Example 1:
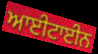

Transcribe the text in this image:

ਆਈਟਾਈਨ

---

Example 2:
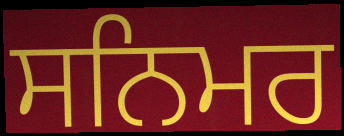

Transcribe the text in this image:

ਸਨਿਮਰ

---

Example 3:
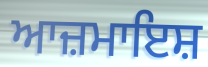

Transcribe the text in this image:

ਆਜ਼ਮਾਇਸ਼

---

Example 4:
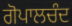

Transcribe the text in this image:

ਗੋਪਾਲਚੰਦ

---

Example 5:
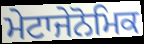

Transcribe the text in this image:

ਮੇਟਾਜੇਨੋਮਿਕ